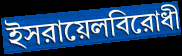
ইসরায়েলবিরোধী